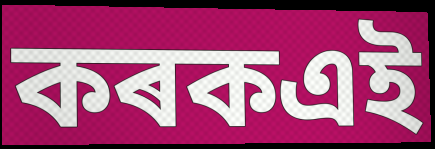
কৰকএই